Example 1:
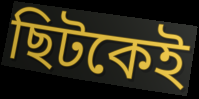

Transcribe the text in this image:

ছিটকেই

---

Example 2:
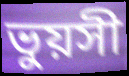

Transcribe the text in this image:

ভুয়সী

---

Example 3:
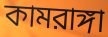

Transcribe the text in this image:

কামরাঙ্গা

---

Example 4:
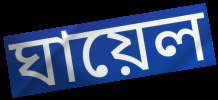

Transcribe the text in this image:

ঘায়েল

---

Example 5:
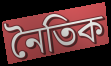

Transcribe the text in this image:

নৈতিক